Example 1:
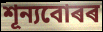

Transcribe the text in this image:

শূন্যবোৰৰ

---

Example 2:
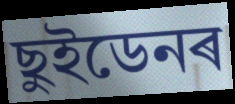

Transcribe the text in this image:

ছুইডেনৰ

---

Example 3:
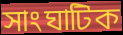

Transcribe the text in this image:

সাংঘাটিক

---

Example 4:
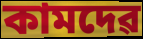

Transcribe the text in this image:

কামদেৱ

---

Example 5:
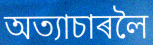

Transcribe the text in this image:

অত্যাচাৰলৈ